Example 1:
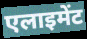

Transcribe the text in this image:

एलाइमेंट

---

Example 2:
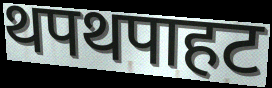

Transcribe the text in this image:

थपथपाहट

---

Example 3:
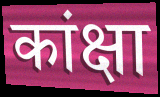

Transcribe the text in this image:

कांक्षा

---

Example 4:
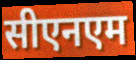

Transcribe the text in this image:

सीएनएम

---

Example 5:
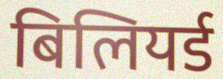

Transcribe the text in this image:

बिलियर्ड